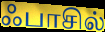
ஃபாசில்